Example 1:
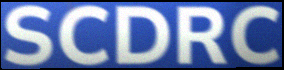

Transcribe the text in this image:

SCDRC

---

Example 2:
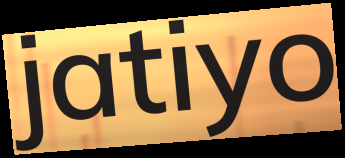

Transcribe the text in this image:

jatiyo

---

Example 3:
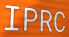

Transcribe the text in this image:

IPRC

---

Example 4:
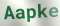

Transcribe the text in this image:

Aapke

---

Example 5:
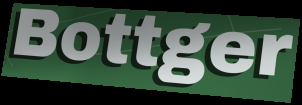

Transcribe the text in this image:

Bottger